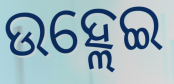
ଉହ୍ଲେଇ